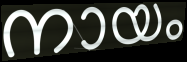
നായം